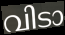
വിടാ